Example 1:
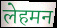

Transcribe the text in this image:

लेहमन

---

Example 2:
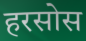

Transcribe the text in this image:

हरसोस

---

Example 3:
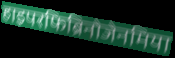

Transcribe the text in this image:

हाइपरफिब्रिनोजेनमिया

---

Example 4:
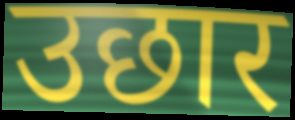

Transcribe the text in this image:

उछार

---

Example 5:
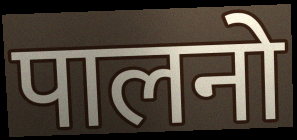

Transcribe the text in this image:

पालनो